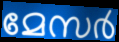
മേസർ